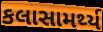
કલાસામર્થ્ય